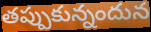
తప్పుకున్నందున